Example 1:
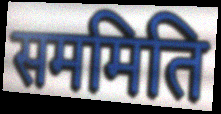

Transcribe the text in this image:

सममिति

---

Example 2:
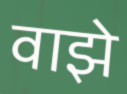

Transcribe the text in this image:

वाझे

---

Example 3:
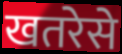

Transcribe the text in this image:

खतरेसे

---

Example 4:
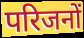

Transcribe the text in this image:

परिजनों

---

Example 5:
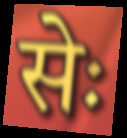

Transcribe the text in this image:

सेः